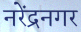
नरेंद्रनगर